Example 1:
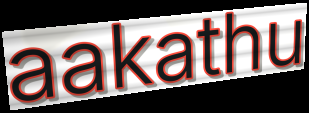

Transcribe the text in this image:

aakathu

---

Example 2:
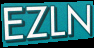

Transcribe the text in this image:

EZLN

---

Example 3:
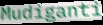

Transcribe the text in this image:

Mudiganti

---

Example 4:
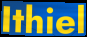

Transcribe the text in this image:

Ithiel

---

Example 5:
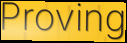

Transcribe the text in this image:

Proving